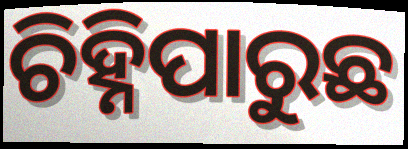
ଚିହ୍ନିପାରୁଛ